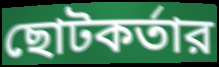
ছোটকর্তার